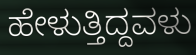
ಹೇಳುತ್ತಿದ್ದವಳು